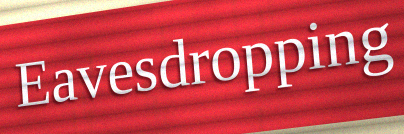
Eavesdropping